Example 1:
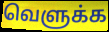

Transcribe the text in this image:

வெளுக்க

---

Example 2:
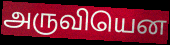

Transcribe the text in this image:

அருவியென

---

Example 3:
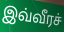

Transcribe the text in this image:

இவ்வீரச்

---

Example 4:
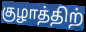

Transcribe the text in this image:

குழாத்திற்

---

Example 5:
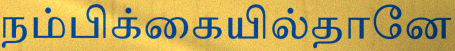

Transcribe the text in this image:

நம்பிக்கையில்தானே